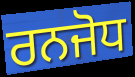
ਰਨਜੋਧ